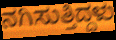
ನಗಿಸುತ್ತಿದ್ದಳು